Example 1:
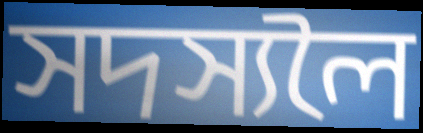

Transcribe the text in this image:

সদস্যলৈ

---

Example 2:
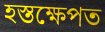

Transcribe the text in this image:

হস্তক্ষেপত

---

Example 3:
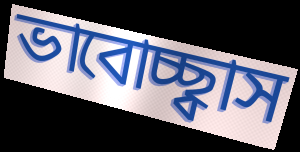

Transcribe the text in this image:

ভাবোচ্ছ্বাস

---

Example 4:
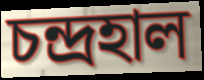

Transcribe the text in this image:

চন্দ্ৰহাল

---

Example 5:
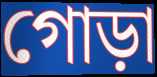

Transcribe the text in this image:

গোড়া